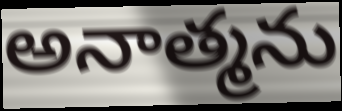
అనాత్మను